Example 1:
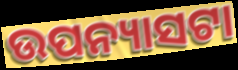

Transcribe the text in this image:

ଉପନ୍ୟାସଟା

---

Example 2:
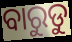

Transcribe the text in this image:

ବାରୁଡୁ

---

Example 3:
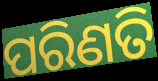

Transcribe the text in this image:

ପରିଣତି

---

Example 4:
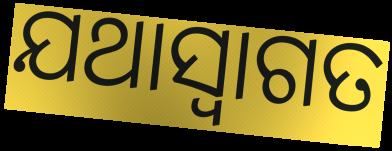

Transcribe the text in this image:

ଯଥାସ୍ଵାଗତ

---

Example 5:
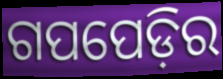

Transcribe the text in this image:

ଗପପେଡ଼ିର